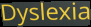
Dyslexia